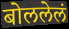
बोललेलं